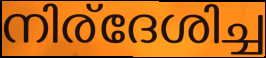
നിര്ദേശിച്ച